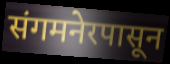
संगमनेरपासून